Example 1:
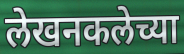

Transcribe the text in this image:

लेखनकलेच्या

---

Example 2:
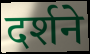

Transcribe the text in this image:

दर्शने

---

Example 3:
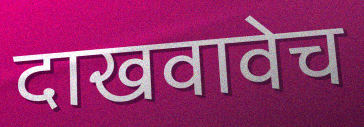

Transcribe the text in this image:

दाखवावेच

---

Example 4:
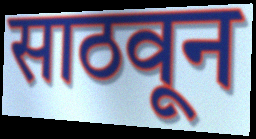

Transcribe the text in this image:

साठवून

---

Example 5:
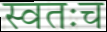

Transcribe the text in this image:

स्वतःच